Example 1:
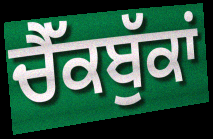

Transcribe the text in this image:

ਚੈੱਕਬੁੱਕਾਂ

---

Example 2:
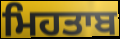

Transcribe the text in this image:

ਮਿਹਤਾਬ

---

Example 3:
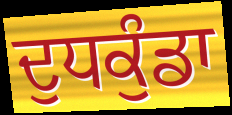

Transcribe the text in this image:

ਦੁਧਕੁੰਡਾ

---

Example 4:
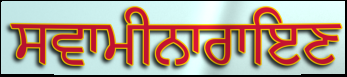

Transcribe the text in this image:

ਸਵਾਮੀਨਾਰਾਇਣ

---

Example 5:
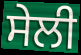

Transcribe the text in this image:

ਸੇਲੀ